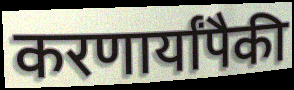
करणार्यांपैकी